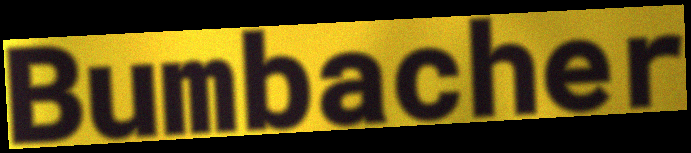
Bumbacher